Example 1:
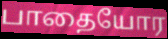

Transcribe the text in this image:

பாதையோர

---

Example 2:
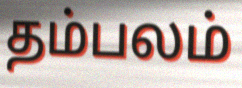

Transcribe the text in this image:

தம்பலம்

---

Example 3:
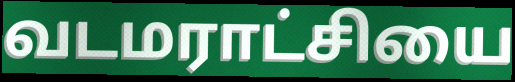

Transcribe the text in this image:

வடமராட்சியை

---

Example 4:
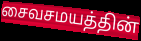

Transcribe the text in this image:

சைவசமயத்தின்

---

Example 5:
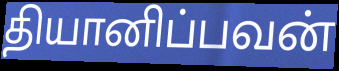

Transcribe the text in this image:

தியானிப்பவன்